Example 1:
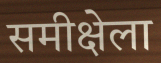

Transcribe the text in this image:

समीक्षेला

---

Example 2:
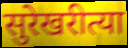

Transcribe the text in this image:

सुरेखरीत्या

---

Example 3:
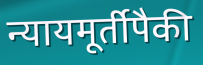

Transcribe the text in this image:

न्यायमूर्तीपैकी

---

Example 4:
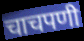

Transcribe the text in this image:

चाचपणी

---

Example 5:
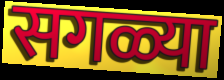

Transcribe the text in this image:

सगळ्या